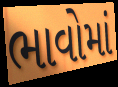
ભાવોમાં